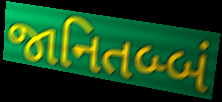
જાનિતબ્બં